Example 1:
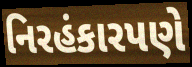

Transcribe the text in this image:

નિરહંકારપણે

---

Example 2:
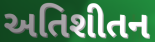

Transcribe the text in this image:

અતિશીતન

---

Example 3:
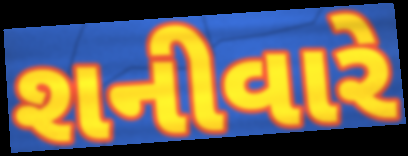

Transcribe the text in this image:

શનીવારે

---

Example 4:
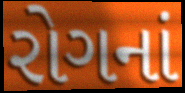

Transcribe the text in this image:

રોગનાં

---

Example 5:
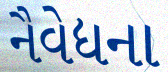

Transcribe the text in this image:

નૈવેદ્યના